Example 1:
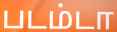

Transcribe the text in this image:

படம்டா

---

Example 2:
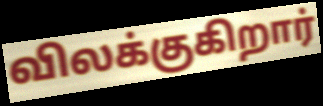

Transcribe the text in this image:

விலக்குகிறார்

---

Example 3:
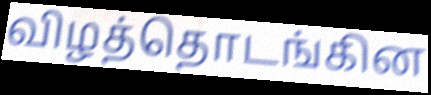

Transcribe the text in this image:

விழத்தொடங்கின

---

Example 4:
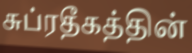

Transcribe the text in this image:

சுப்ரதீகத்தின்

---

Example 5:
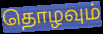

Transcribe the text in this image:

தொழவும்